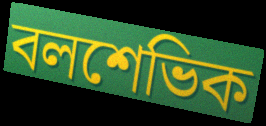
বলশেভিক